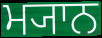
ਮ੍ਯਾਨ